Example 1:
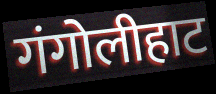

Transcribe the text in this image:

गंगोलीहाट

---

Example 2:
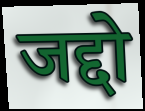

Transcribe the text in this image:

जद्दो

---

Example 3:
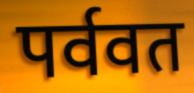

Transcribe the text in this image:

पर्ववत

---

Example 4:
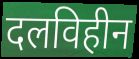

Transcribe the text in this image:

दलविहीन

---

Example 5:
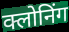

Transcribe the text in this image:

क्लोनिंग